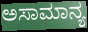
ಅಸಾಮಾನ್ಯ